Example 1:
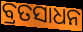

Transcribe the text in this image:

ବ୍ରତସାଧନ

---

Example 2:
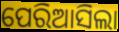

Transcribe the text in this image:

ପେରିଆସିଲା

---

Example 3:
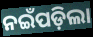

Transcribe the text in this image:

ନଇଁପଡ଼ିଲା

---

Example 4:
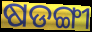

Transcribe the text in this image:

ଷଡଙ୍ଗୀ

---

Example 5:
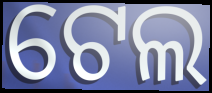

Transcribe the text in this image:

ଟେଲ